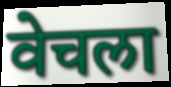
वेचला